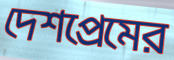
দেশপ্রেমের